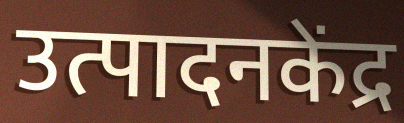
उत्पादनकेंद्र